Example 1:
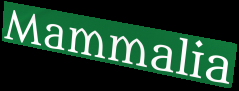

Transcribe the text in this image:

Mammalia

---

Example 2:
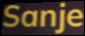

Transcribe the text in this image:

Sanje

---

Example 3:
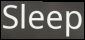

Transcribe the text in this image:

Sleep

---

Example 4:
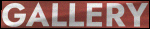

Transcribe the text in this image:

GALLERY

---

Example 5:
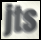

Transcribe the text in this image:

jts